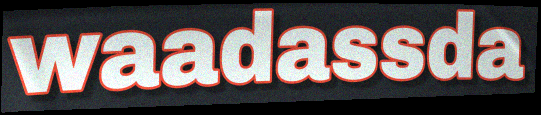
waadassda